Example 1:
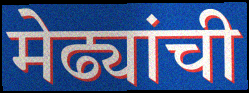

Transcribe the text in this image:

मेढ्यांची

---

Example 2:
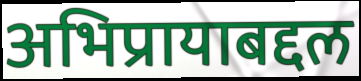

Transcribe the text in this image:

अभिप्रायाबद्दल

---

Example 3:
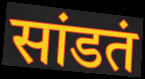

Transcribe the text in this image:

सांडतं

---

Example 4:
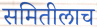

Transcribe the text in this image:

समितीलाच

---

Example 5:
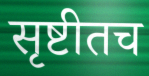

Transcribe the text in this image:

सृष्टीतच